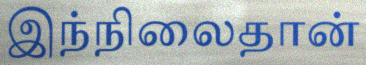
இந்நிலைதான்